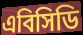
এবিসিডি